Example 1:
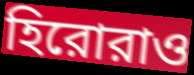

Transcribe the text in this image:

হিরোরাও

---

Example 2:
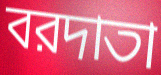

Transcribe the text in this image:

বরদাতা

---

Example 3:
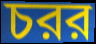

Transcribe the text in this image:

চরর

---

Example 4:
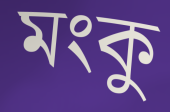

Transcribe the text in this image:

মংকু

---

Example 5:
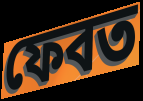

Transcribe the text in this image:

ফেবত